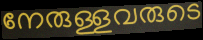
നേരുള്ളവരുടെ